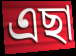
এছা